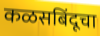
कळसबिंदूचा